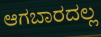
ಆಗಬಾರದಲ್ಲ